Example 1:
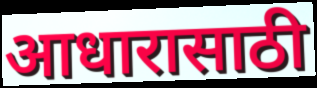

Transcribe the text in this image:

आधारासाठी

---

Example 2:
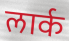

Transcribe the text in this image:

लार्क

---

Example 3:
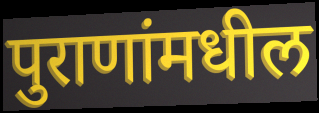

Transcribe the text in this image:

पुराणांमधील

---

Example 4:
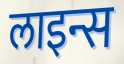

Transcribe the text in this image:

लाइन्स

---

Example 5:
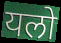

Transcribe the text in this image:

यलो